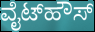
ವೈಟ್‌ಹೌಸ್